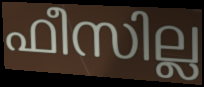
ഫീസില്ല